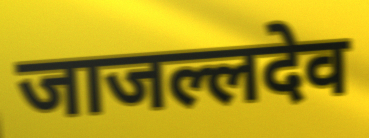
जाजल्लदेव